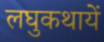
लघुकथायें